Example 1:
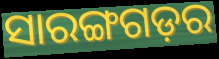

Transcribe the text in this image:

ସାରଙ୍ଗଗଡ଼ର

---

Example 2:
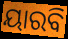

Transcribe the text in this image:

ୟାରବି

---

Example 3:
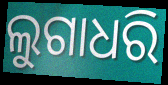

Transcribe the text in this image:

ଲୁଗାଧରି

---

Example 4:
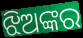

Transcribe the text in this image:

ଝିଅଙ୍କର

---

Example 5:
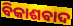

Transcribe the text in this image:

ବିକାଶବାଦ